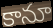
కానూ